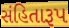
સંહિતારૂપ